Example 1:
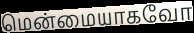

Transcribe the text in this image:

மென்மையாகவோ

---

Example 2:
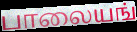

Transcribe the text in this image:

பாலையங்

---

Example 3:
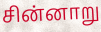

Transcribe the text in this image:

சின்னாறு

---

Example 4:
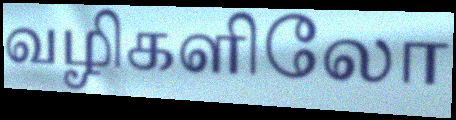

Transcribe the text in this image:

வழிகளிலோ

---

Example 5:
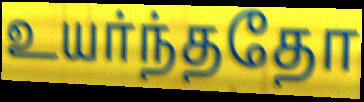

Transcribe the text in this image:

உயர்ந்ததோ